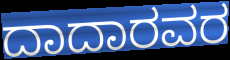
ದಾದಾರವರ